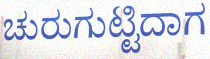
ಚುರುಗುಟ್ಟಿದಾಗ